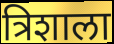
त्रिशाला